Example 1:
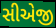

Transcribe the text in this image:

સીએજી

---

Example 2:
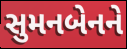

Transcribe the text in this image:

સુમનબેનને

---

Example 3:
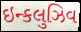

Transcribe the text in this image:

ઇન્કલુઝિવ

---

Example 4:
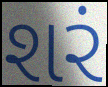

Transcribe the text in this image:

શરં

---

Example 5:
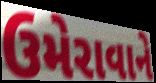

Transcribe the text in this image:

ઉમેરાવાને